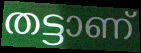
തട്ടാണ്